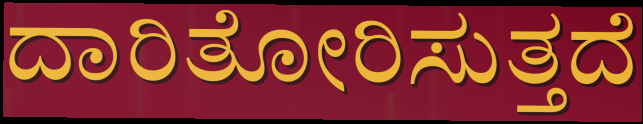
ದಾರಿತೋರಿಸುತ್ತದೆ